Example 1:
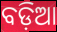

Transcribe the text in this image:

ବଡ଼ିଆ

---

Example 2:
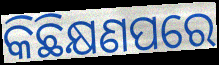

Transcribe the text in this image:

କିଛିକ୍ଷଣପରେ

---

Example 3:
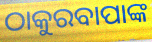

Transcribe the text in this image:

ଠାକୁରବାପାଙ୍କ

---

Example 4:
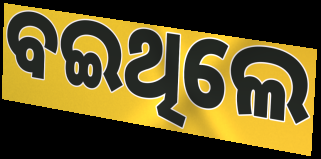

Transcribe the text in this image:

ବଇଥିଲେ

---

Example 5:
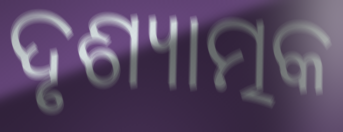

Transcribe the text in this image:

ଦୃଶ୍ୟାତ୍ମକ